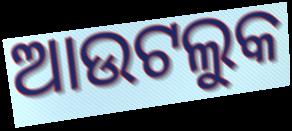
ଆଉଟଲୁକ